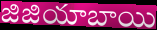
జిజియాబాయి